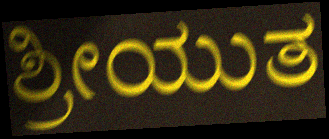
ಶ್ರೀಯುತ